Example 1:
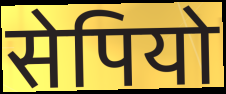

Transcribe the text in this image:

सेपियो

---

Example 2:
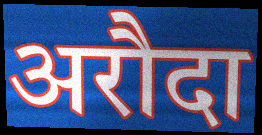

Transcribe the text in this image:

अरौदा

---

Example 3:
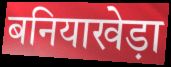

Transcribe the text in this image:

बनियाखेड़ा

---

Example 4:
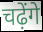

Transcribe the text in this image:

चढ़ेंगे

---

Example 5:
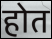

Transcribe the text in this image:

होत